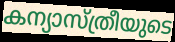
കന്യാസ്ത്രീയുടെ